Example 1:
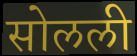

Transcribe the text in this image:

सोलली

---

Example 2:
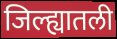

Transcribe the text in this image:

जिल्ह्यातली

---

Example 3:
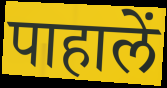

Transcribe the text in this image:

पाहालें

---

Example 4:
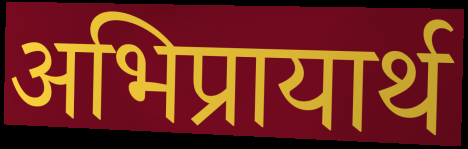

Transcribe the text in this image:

अभिप्रायार्थ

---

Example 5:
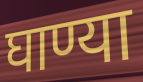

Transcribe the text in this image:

घाण्या